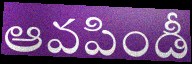
ఆవపిండీ